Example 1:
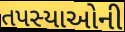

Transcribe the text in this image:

તપસ્યાઓની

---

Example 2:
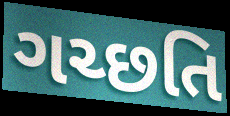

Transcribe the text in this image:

ગચ્છતિ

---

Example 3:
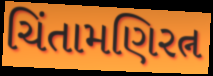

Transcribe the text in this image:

ચિંતામણિરત્ન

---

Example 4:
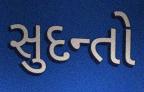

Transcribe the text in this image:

સુદન્તો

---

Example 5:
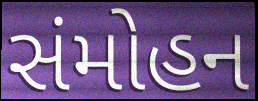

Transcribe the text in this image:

સંમોહન